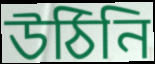
উঠিনি